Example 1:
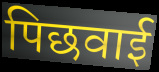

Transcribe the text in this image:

पिछवाई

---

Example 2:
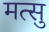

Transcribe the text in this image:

मत्सु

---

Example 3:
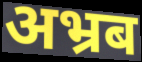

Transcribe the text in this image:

अभ्रब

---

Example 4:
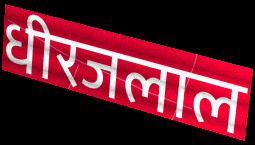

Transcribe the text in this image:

धीरजलाल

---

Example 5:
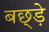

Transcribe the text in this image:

बछ्ड़े